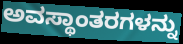
ಅವಸ್ಥಾಂತರಗಳನ್ನು